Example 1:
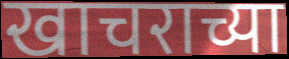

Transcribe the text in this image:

खाचराच्या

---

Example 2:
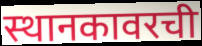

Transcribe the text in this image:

स्थानकावरची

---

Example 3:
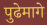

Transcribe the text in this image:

पुढेमागे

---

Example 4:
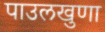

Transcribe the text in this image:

पाउलखुणा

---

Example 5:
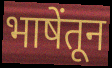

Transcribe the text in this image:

भाषेंतून